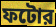
ফটোর